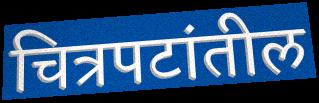
चित्रपटांतील